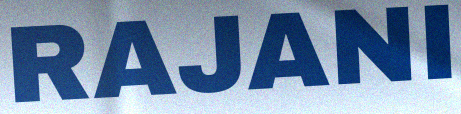
RAJANI